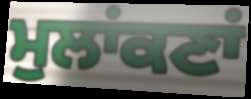
ਮੁਲਾਂਕਣਾਂ